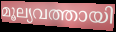
മൂല്യവത്തായി